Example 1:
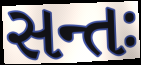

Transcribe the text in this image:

સન્તઃ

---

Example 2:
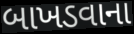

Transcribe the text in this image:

બાખડવાના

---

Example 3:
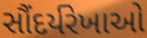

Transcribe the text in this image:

સૌંદર્યરેખાઓ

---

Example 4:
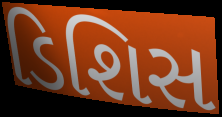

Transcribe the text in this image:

ડિશિસ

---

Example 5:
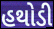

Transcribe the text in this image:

હથોડી